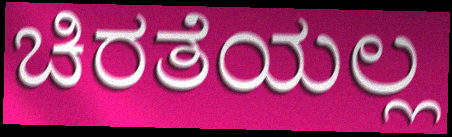
ಚಿರತೆಯಲ್ಲ